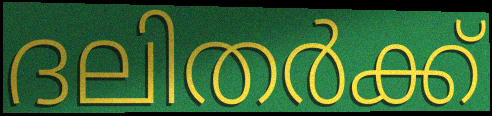
ദലിതർക്ക്